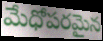
మేధోపరమైన